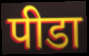
पीडा